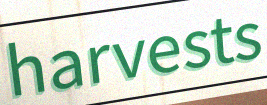
harvests